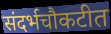
संदर्भचौकटीत